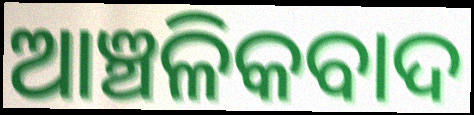
ଆଞ୍ଚଳିକବାଦ